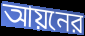
আয়নের